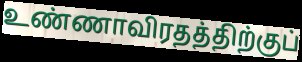
உண்ணாவிரதத்திற்குப்